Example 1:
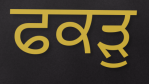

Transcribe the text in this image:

ਫਕੜੁ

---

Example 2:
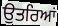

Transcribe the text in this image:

ਉਤਰਿਆਂ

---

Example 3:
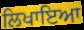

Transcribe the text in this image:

ਲਿਖਾਇਆ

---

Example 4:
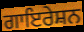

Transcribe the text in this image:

ਗਾਇਰੇਸ਼ਨ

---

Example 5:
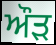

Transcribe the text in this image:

ਔਡ਼